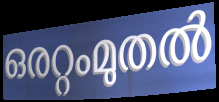
ഒരറ്റംമുതൽ